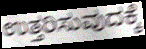
ಉತ್ತರಿಸುವುದಕ್ಕೆ